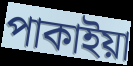
পাকাইয়া